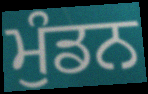
ਮੁੰਡਨ